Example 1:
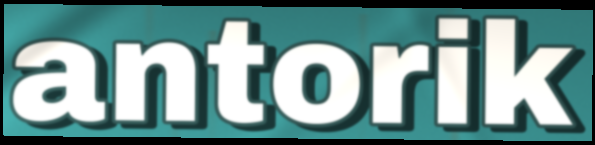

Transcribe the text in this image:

antorik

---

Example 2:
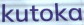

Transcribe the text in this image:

kutoka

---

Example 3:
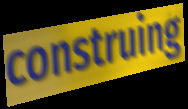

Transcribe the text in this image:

construing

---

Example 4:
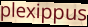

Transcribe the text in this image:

plexippus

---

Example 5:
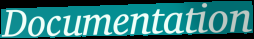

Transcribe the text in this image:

Documentation